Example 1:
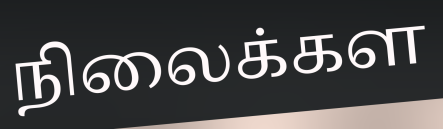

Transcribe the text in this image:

நிலைக்கள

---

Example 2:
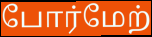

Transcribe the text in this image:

போர்மேற்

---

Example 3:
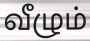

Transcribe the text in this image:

வீழும்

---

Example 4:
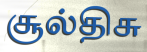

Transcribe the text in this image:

சூல்திசு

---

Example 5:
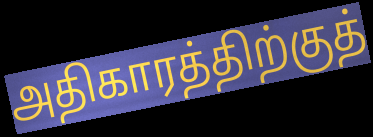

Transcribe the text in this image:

அதிகாரத்திற்குத்